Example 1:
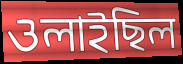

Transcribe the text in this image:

ওলাইছিল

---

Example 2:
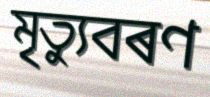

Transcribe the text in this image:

মৃত্যুবৰণ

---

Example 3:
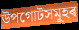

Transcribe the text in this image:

উপগোটসমূহৰ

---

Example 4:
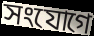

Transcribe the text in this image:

সংযোগে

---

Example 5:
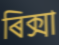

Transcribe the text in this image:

ৰিক্সা